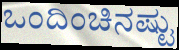
ಒಂದಿಂಚಿನಷ್ಟು